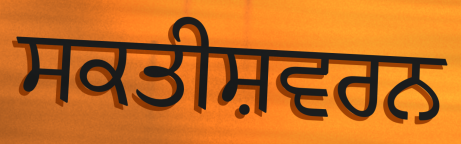
ਸਕਤੀਸ਼ਵਰਨ